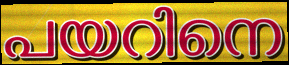
പയറിനെ